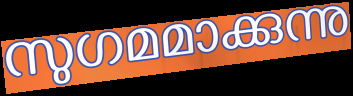
സുഗമമാക്കുന്നു